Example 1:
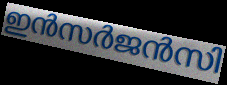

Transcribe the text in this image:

ഇൻസർജൻസി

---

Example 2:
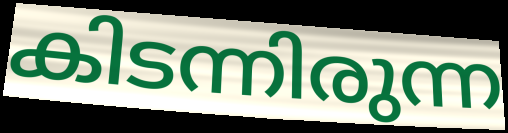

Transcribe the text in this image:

കിടന്നിരുന്ന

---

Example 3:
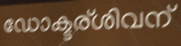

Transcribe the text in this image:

ഡോക്ടര്ശിവന്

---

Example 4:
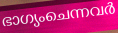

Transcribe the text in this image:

ഭാഗ്യംചെന്നവർ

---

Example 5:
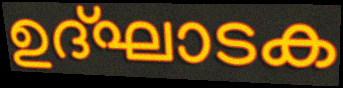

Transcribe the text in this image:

ഉദ്ഘാടക